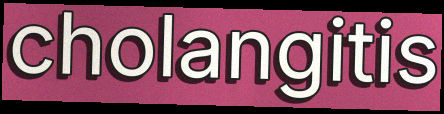
cholangitis